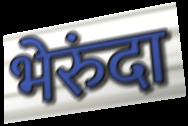
भेरुंदा